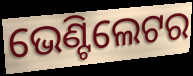
ଭେଣ୍ଟିଲେଟର